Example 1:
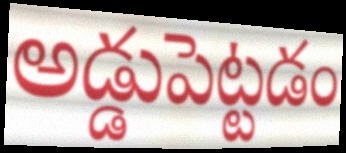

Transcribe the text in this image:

అడ్డుపెట్టడం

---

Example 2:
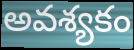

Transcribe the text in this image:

అవశ్యకం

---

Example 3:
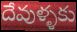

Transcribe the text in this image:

దేవుళ్ళకు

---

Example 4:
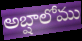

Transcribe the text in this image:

అబ్షాలోము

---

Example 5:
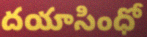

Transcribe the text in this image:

దయాసింధో